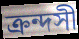
ক্রন্দসী